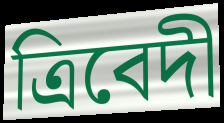
ত্রিবেদী